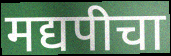
मद्यपीचा